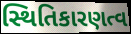
સ્થિતિકારણત્વ